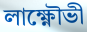
লাক্ষ্ণৌভী